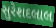
સુરેશદલાલ